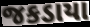
જકડાયા